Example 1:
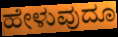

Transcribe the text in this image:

ಹೇಳುವುದೂ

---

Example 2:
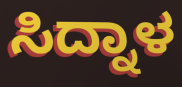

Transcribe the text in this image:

ಸಿದ್ನಾಳ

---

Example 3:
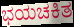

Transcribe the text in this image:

ಭಯಚಕಿತ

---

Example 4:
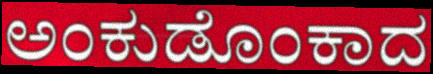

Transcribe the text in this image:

ಅಂಕುಡೊಂಕಾದ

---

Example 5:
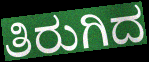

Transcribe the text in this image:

ತಿರುಗಿದ